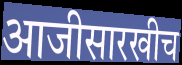
आजीसारखीच